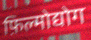
फ़िल्मोद्योग